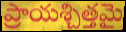
ప్రాయశ్చిత్తమై